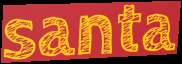
santa